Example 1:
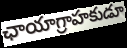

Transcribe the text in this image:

ఛాయాగ్రాహకుడూ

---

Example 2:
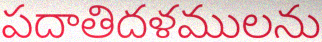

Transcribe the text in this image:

పదాతిదళములను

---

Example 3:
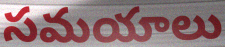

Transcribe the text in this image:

సమయాలు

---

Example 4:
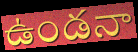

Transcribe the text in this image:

ఉండనా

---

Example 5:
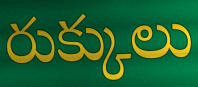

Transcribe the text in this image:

రుక్కులు